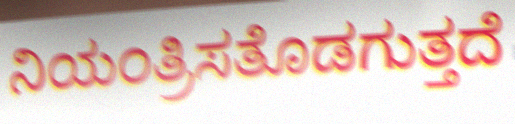
ನಿಯಂತ್ರಿಸತೊಡಗುತ್ತದೆ